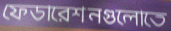
ফেডারেশনগুলোতে